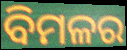
ବିମଳର